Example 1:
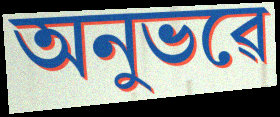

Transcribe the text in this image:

অনুভৱে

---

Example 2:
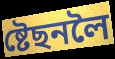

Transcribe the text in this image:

ষ্টেছনলৈ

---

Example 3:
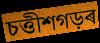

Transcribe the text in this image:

চত্তীশগড়ৰ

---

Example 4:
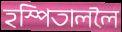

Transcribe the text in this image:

হস্পিতাললৈ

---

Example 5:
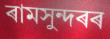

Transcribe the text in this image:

ৰামসুন্দৰৰ